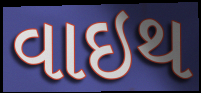
વાઇથ